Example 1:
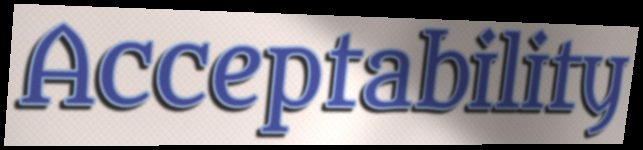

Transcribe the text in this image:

Acceptability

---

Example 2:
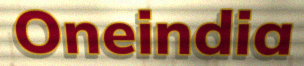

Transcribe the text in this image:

Oneindia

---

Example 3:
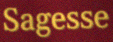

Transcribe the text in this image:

Sagesse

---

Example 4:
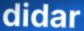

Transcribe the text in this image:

didar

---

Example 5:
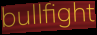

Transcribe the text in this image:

bullfight